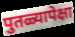
पुतळ्यापेक्षा